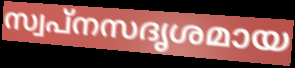
സ്വപ്നസദൃശമായ